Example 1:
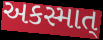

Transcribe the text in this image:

અકસ્માત્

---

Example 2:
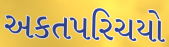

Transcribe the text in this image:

અકતપરિચયો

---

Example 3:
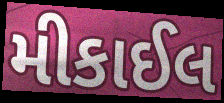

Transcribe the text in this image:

મીકાઈલ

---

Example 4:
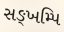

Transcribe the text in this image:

સઙ્ખમ્પિ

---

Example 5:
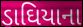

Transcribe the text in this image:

ડાઘિયાના